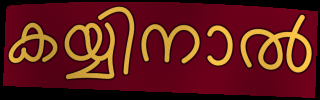
കയ്യിനാൽ